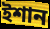
ইশান